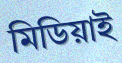
মিডিয়াই